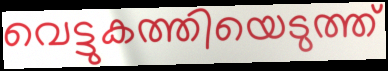
വെട്ടുകത്തിയെടുത്ത്